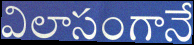
విలాసంగానే